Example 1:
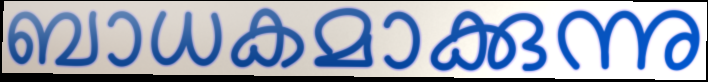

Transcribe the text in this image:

ബാധകമാക്കുന്നു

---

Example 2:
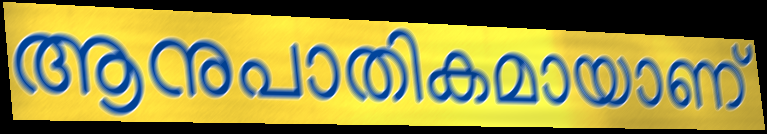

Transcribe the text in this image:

ആനുപാതികമായാണ്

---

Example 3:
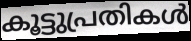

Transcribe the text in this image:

കൂട്ടുപ്രതികൾ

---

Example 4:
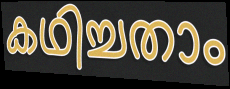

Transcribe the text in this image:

കഥിച്ചതാം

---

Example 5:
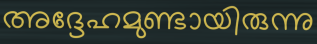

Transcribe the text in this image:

അദ്ദേഹമുണ്ടായിരുന്നു